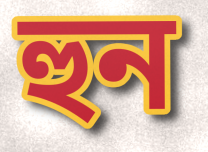
হুন